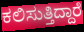
ಕಲಿಸುತ್ತಿದ್ದಾರೆ